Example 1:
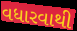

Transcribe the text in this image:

વધારવાથી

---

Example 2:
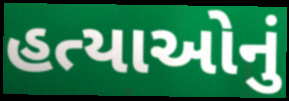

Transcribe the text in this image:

હત્યાઓનું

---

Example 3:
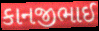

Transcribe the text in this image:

કાનજીભાઈ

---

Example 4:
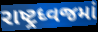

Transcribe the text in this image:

રાષ્ટ્રધ્વજમાં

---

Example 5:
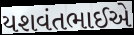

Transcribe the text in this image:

યશવંતભાઈએ